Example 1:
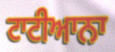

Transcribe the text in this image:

ਟਾਟੀਆਨਾ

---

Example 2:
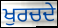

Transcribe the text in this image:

ਖੁਰਚਦੇ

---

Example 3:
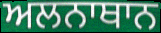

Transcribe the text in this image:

ਅਲਨਾਥਾਨ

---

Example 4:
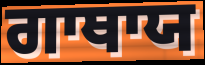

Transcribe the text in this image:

ਗਾਥਾਯ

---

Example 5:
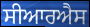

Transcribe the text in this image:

ਸੀਆਰਐਸ